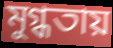
মুগ্ধতায়